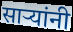
साऱ्यांनी